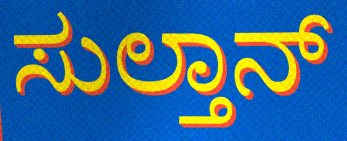
ಸುಲ್ತಾನ್